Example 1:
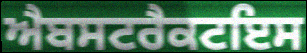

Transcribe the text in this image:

ਐਬਸਟਰੈਕਟਇਸ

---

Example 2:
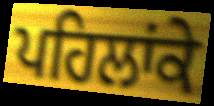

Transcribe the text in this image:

ਪਹਿਲਾਂਕੇ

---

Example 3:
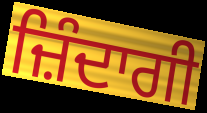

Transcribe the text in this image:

ਜ਼ਿੰਦਾਗੀ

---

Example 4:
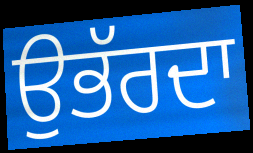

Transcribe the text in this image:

ਉਭੱਰਦਾ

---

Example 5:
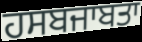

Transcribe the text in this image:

ਹਸਬਜਾਬਤਾ